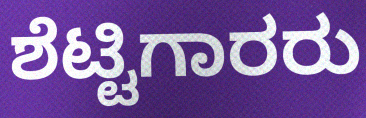
ಶೆಟ್ಟಿಗಾರರು